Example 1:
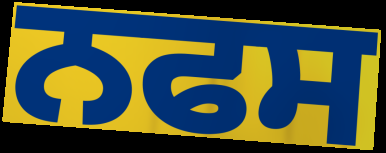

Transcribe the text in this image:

ਨਫਸ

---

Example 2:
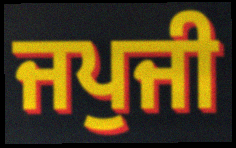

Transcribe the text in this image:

ਜਪੁਜੀ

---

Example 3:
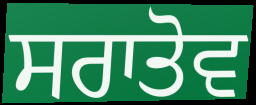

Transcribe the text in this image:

ਸਰਾਤੋਵ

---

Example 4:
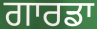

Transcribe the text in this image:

ਗਾਰਡਾ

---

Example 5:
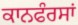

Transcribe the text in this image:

ਕਾਨਫੰਰਸਾਂ